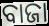
ବାଜା